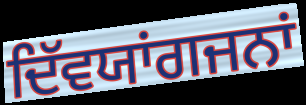
ਦਿੱਵਯਾਂਗਜਨਾਂ